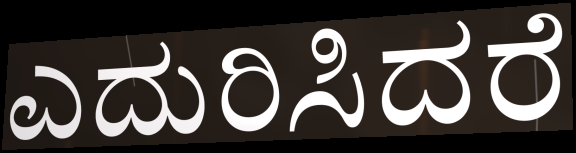
ಎದುರಿಸಿದರೆ